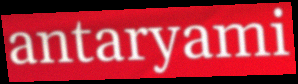
antaryami